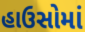
હાઉસોમાં